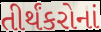
તીર્થંકરોનાં